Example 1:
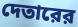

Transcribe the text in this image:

দেতারের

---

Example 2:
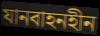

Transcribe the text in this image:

যানবাহনহীন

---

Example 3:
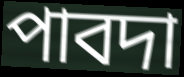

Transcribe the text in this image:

পাবদা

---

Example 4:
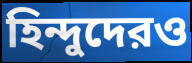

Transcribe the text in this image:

হিন্দুদেরও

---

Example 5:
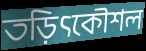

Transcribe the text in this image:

তড়িৎকৌশল